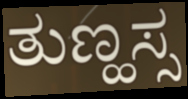
ತುಣ್ಹಸ್ಸ